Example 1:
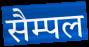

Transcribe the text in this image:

सैम्पल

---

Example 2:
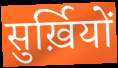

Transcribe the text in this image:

सुर्ख़ियों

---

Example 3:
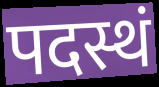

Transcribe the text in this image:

पदस्थं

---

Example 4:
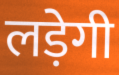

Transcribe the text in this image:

लड़ेगी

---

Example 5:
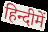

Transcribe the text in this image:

हिन्दीमें